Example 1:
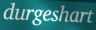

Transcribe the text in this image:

durgeshart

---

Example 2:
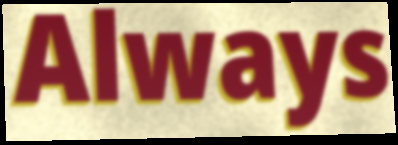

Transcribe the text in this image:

Always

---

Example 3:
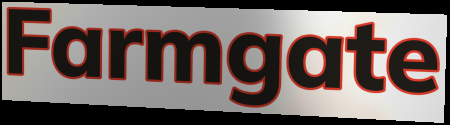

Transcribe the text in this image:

Farmgate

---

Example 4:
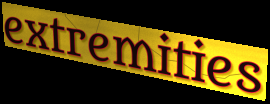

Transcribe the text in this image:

extremities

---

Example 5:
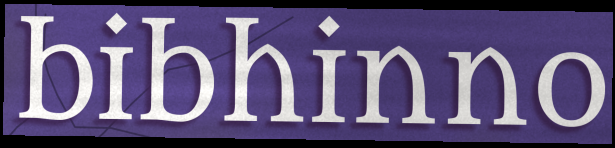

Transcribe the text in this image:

bibhinno